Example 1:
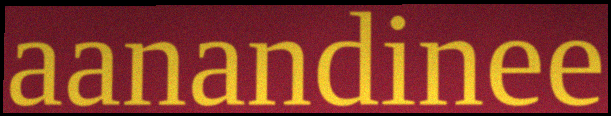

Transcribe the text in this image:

aanandinee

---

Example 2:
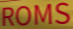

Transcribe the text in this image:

ROMS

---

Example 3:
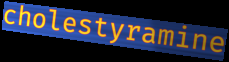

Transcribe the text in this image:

cholestyramine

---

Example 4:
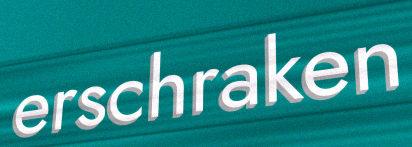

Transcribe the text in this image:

erschraken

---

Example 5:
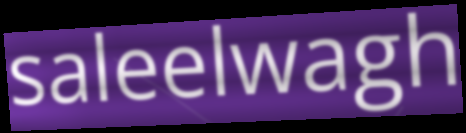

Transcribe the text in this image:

saleelwagh